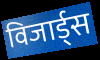
विजार्ड्स